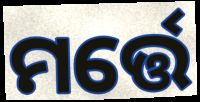
ମର୍ତ୍ତେ